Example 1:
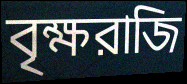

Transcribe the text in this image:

বৃক্ষরাজি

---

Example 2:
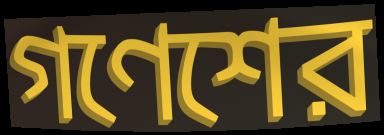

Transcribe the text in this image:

গণেশের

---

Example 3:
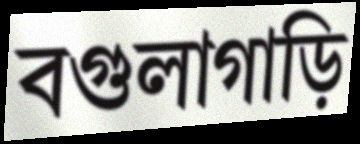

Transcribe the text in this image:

বগুলাগাড়ি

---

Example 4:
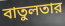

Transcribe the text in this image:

বাতুলতার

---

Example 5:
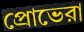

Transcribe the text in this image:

প্রোভেরা